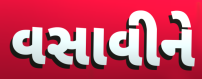
વસાવીને